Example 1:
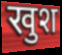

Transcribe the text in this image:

खुश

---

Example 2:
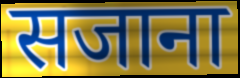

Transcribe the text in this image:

सजाना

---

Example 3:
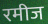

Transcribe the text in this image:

रमीज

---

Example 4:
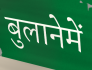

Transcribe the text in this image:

बुलानेमें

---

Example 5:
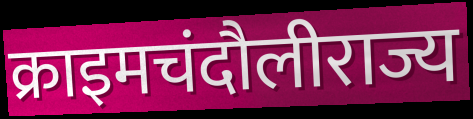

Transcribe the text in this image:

क्राइमचंदौलीराज्य